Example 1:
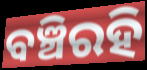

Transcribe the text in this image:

ବଞ୍ଚିରହି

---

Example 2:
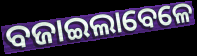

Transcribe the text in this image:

ବଜାଇଲାବେଳେ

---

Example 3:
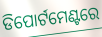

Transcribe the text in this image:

ଡିପୋର୍ଟମେଣ୍ଟରେ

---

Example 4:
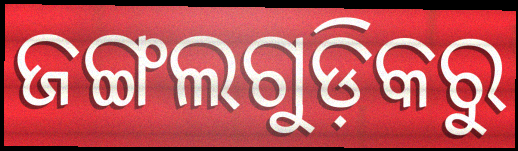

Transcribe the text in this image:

ଜଙ୍ଗଲଗୁଡ଼ିକରୁ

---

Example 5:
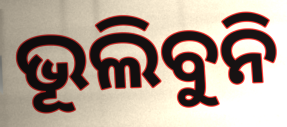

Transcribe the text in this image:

ଭୂଲିବୁନି